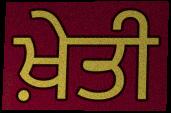
ਖ਼ੇਤੀ